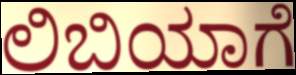
ಲಿಬಿಯಾಗೆ